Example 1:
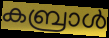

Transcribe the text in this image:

കബ്രാൾ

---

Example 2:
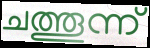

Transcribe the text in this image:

ചത്തൂന്ന്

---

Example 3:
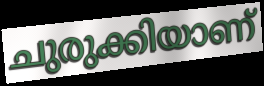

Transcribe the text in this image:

ചുരുക്കിയാണ്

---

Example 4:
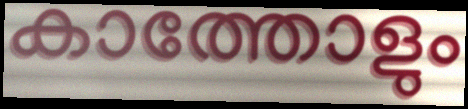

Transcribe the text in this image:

കാത്തോളും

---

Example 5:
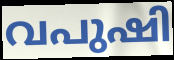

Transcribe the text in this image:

വപുഷി